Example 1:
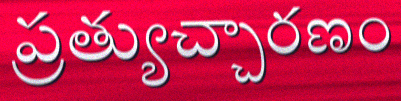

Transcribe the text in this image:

ప్రత్యుచ్చారణం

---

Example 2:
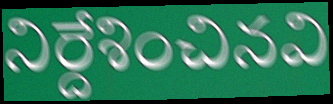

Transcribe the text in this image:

నిర్దేశించినవి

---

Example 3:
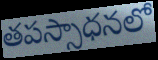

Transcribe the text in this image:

తపస్సాధనలో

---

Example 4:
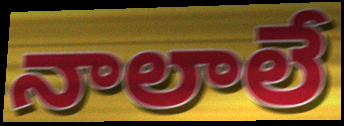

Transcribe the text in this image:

నాలాలే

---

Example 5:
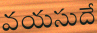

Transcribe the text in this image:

వయసుదే